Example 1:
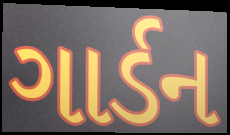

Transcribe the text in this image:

ગાર્ડન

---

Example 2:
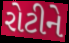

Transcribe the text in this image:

રોટીને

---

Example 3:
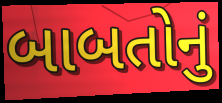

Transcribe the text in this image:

બાબતોનું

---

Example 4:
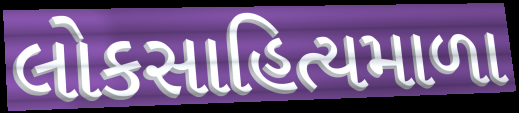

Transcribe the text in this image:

લોકસાહિત્યમાળા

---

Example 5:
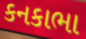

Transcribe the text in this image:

કનકાભા